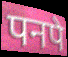
पनपे